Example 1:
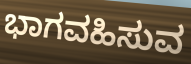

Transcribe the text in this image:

ಭಾಗವಹಿಸುವ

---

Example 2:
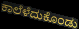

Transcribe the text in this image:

ಕಾಲೆಳೆದುಕೊಂಡು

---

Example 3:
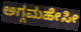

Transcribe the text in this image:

ಅಗ್ಗಮಹೇಸೀ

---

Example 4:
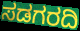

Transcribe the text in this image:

ಸಡಗರದಿ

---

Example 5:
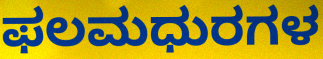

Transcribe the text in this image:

ಫಲಮಧುರಗಳ